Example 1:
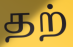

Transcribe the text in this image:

தற்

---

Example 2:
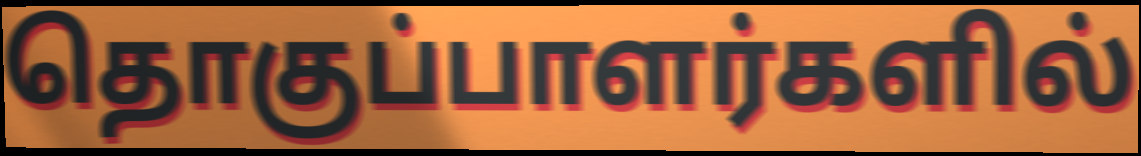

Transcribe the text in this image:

தொகுப்பாளர்களில்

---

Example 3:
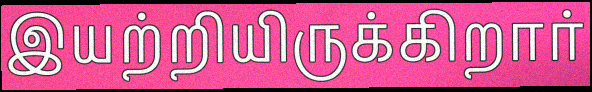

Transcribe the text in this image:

இயற்றியிருக்கிறார்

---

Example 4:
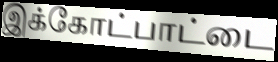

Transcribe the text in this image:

இக்கோட்பாட்டை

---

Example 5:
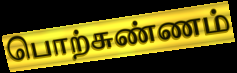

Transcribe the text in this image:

பொற்சுண்ணம்